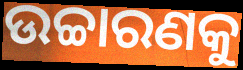
ଉଚ୍ଚାରଣକୁ